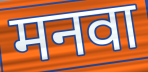
मनवा